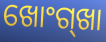
ଖୋଂଗ୍‍ଖା